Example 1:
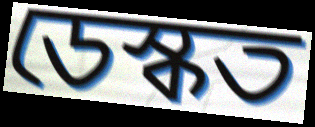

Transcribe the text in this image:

ডেস্কত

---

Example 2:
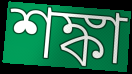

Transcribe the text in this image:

শঙ্কা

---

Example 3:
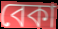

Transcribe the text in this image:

বেকা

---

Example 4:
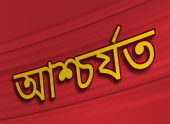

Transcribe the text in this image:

আশ্চৰ্যত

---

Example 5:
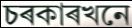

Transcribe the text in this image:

চৰকাৰখনে